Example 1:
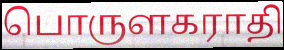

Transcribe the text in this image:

பொருளகராதி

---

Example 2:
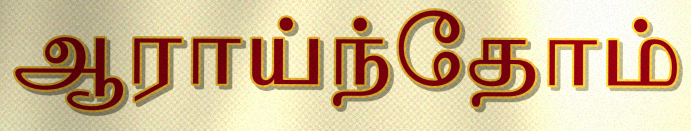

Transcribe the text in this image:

ஆராய்ந்தோம்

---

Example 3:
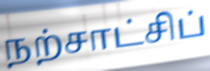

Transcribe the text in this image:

நற்சாட்சிப்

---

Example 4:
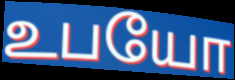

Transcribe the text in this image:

உபயோ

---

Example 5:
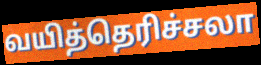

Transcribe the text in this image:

வயித்தெரிச்சலா